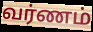
வர்ணம்